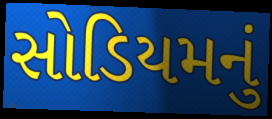
સોડિયમનું